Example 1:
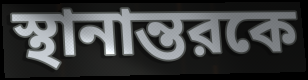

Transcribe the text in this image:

স্থানান্তরকে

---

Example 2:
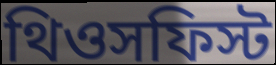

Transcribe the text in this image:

থিওসফিস্ট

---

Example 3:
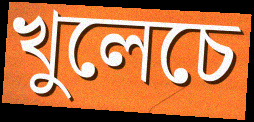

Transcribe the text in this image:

খুলেচে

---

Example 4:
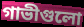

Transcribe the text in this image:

গাভীগুলো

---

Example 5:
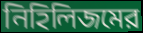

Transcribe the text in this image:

নিহিলিজমের